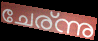
ചേര്ന്നു